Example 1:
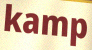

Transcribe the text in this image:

kamp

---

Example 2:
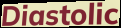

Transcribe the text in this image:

Diastolic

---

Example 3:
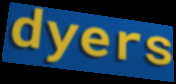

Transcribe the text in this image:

dyers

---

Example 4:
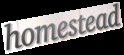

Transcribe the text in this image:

homestead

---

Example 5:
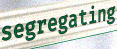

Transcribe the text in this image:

segregating